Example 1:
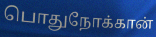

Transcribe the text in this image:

பொதுநோக்கான்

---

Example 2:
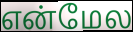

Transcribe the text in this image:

என்மேல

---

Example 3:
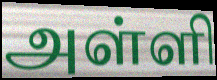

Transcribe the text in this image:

அள்ளி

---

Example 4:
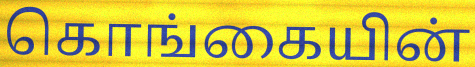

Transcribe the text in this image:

கொங்கையின்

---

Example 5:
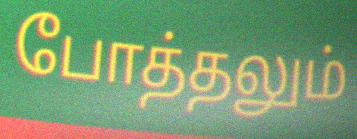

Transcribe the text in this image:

போத்தலும்